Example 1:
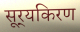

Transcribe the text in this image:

सूर्यकिरण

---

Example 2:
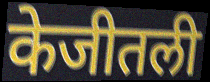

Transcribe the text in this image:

केजीतली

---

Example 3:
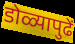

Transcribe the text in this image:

डोळ्यापुढें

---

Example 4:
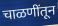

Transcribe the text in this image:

चाळणींतून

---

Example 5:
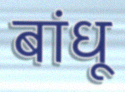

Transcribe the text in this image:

बांधू